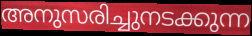
അനുസരിച്ചുനടക്കുന്ന